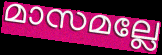
മാസമല്ലേ